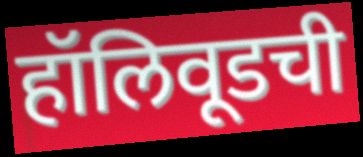
हॉलिवूडची